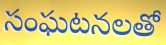
సంఘటనలతో